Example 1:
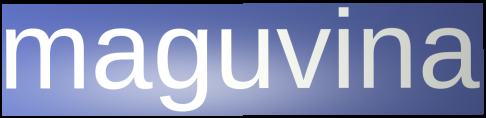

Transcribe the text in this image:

maguvina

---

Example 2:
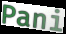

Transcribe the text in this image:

Pani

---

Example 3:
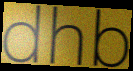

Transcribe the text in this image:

dhb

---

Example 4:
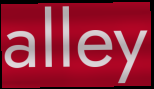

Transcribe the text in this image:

alley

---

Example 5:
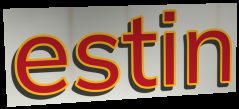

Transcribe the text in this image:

estin